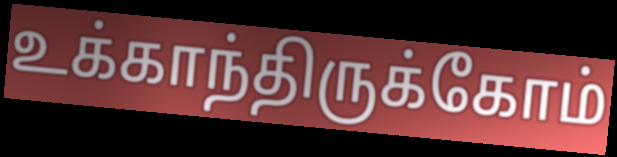
உக்காந்திருக்கோம்